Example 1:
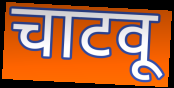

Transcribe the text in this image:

चाटवू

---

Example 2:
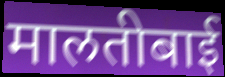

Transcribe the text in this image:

मालतीबाई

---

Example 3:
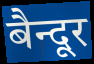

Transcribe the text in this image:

बैन्दूर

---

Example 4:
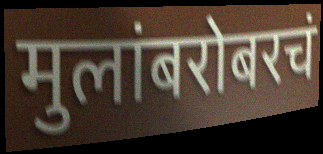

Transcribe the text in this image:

मुलांबरोबरचं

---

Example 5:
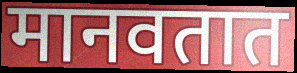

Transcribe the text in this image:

मानवतात